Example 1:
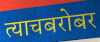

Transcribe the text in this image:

त्‍याचबरोबर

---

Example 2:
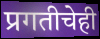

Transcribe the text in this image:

प्रगतीचेही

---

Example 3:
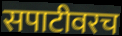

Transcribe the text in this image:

सपाटीवरच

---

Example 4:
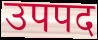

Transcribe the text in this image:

उपपद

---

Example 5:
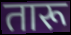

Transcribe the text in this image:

तारू